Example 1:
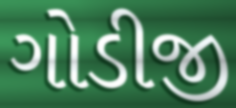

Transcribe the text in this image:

ગોડીજી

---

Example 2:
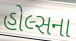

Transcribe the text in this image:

હોલ્સના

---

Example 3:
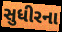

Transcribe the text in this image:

સુધીરના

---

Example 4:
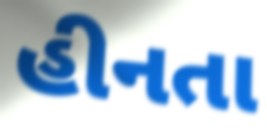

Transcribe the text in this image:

હીનતા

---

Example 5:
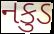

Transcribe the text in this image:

નકુડ